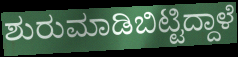
ಶುರುಮಾಡಿಬಿಟ್ಟಿದ್ದಾಳೆ